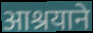
आश्रयाने